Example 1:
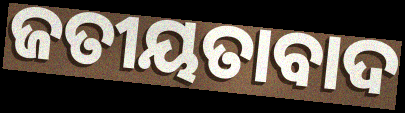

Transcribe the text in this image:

ଜତୀୟତାବାଦ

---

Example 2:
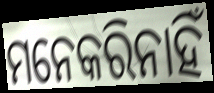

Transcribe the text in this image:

ମନେକରିନାହିଁ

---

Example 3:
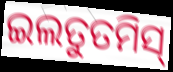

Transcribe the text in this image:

ଇଲତୁତମିସ୍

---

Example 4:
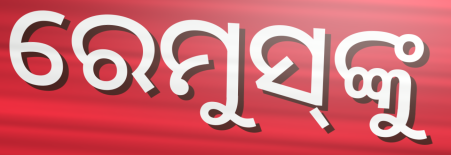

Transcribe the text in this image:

ରେମୁସ୍‌ଙ୍କୁ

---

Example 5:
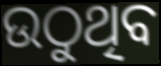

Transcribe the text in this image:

ଉଠୁଥିବ